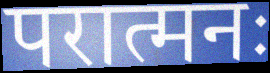
परात्मनः